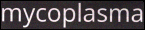
mycoplasma